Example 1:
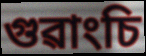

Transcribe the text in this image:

গুৱাংচি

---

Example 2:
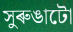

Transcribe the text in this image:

সুৰুঙাটো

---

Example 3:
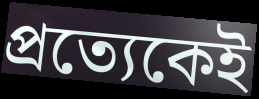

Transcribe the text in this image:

প্ৰত্যেকেই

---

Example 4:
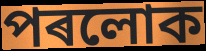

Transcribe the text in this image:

পৰলোক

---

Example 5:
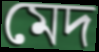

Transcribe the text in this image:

মেদ